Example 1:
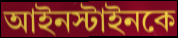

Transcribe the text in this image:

আইনস্টাইনকে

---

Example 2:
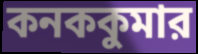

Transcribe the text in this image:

কনককুমার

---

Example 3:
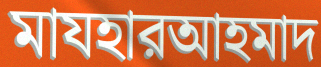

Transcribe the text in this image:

মাযহারআহমাদ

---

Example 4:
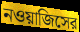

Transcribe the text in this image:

নওয়াজিসের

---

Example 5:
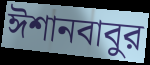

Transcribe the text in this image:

ঈশানবাবুর